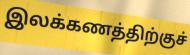
இலக்கணத்திற்குச்